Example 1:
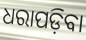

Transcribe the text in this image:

ଧରାପଡ଼ିବା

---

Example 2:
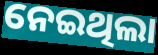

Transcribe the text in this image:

ନେଇଥିଲା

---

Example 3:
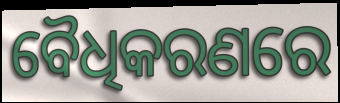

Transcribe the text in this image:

ବୈଧିକରଣରେ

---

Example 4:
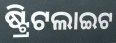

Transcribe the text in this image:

ଷ୍ଟ୍ରିଟଲାଇଟ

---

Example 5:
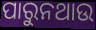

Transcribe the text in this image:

ପାରୁନଥାଉ